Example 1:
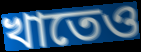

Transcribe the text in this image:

খাতেও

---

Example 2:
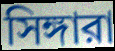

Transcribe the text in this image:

সিঙ্গারা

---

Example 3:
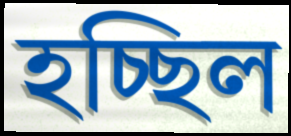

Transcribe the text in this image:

হচ্ছিল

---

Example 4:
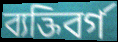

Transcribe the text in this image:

ব্যক্তিবর্গ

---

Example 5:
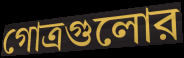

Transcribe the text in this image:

গোত্রগুলোর